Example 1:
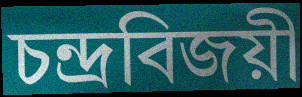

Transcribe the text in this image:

চন্দ্রবিজয়ী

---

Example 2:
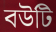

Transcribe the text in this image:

বউটি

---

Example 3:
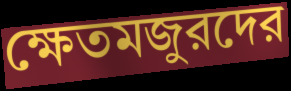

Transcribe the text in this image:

ক্ষেতমজুরদের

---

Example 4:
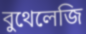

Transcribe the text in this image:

বুথেলেজি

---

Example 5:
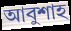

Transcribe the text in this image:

আবুশাহ